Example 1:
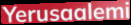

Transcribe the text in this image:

Yerusaalemi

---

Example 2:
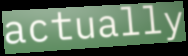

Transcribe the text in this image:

actually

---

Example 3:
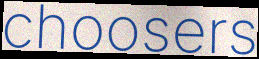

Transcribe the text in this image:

choosers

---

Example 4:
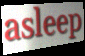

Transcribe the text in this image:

asleep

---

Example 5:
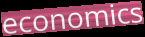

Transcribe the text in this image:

economics